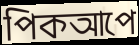
পিকআপে